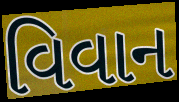
વિવાન